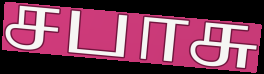
சபாசு